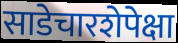
साडेचारशेपेक्षा